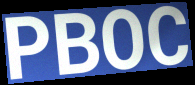
PBOC